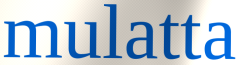
mulatta